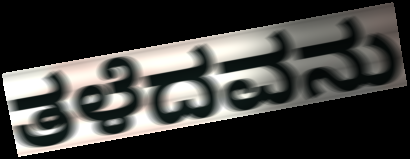
ತಳೆದವನು